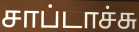
சாப்டாச்சு